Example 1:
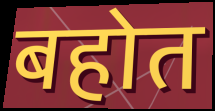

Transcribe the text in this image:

बहोत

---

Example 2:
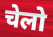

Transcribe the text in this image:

चेलो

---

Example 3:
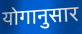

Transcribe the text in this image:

योगानुसार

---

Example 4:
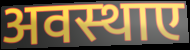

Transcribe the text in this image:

अवस्थाए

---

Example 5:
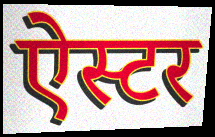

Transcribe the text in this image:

ऐस्टर